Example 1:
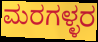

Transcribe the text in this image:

ಮರಗಳ್ಳರ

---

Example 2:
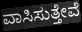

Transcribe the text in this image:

ವಾಸಿಸುತ್ತೇವೆ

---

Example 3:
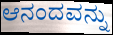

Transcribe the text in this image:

ಆನಂದವನ್ನು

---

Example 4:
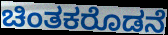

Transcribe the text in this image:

ಚಿಂತಕರೊಡನೆ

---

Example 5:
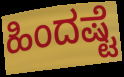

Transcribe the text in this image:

ಹಿಂದಷ್ಟೆ